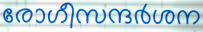
രോഗീസന്ദർശന